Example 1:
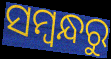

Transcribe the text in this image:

ସମ୍ୱନ୍ଧରୁ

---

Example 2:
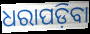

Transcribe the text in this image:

ଧରାପଡ଼ିବା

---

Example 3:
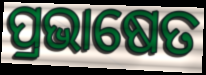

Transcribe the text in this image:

ପ୍ରଭାଷେତ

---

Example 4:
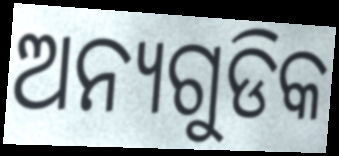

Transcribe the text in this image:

ଅନ୍ୟଗୁଡିକ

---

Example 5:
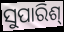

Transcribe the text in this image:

ସୁପାରିଶ୍